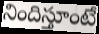
నిందిస్తూంటే